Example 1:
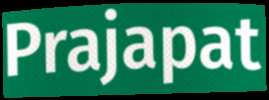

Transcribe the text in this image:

Prajapat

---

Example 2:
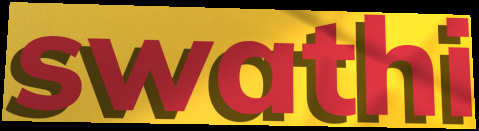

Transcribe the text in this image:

swathi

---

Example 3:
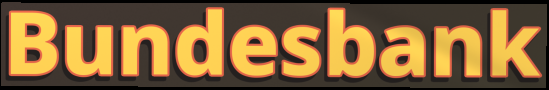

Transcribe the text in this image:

Bundesbank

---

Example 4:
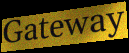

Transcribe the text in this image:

Gateway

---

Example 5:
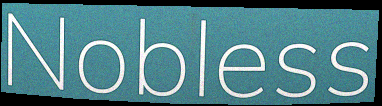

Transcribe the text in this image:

Nobless